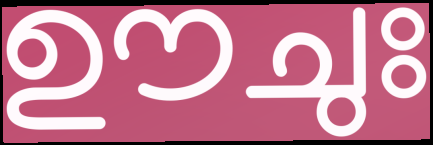
ഊചുഃ